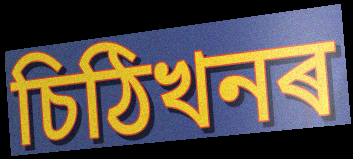
চিঠিখনৰ